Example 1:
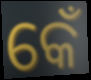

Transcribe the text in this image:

କେଁ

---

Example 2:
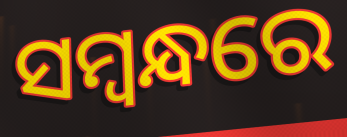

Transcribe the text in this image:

ସମ୍ବନ୍ଧରେ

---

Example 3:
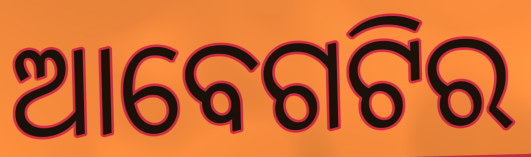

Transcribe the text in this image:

ଆବେଗଟିର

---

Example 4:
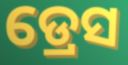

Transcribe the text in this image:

ଡ୍ରେସ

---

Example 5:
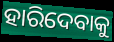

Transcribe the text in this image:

ହାରିଦେବାକୁ